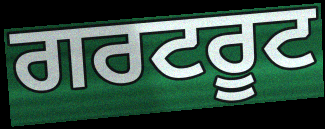
ਗਰਟਰੂਟ